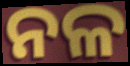
ନଳ